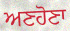
ਅਣਹੋਣਾ